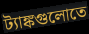
ট্যাঙ্কগুলোতে